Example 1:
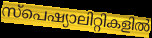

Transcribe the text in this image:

സ്പെഷ്യാലിറ്റികളിൽ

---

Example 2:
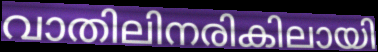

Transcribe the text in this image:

വാതിലിനരികിലായി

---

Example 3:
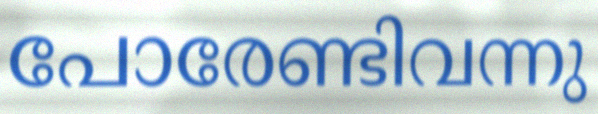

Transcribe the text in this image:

പോരേണ്ടിവന്നു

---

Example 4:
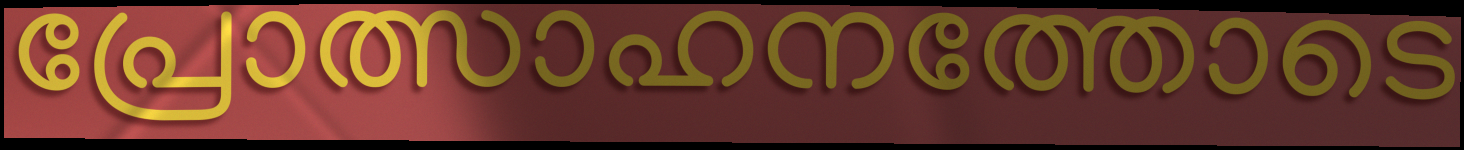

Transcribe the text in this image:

പ്രോത്സാഹനത്തോടെ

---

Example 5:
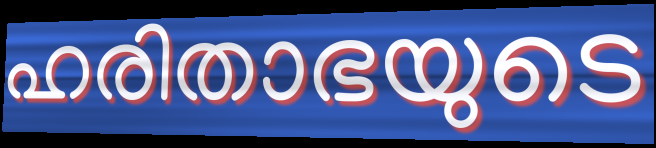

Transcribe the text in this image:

ഹരിതാഭയുടെ